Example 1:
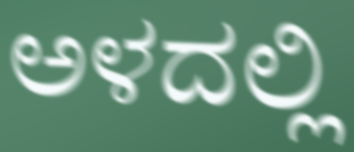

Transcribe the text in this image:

ಅಳದಲ್ಲಿ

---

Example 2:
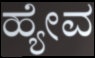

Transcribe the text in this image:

ಹ್ಯೇವ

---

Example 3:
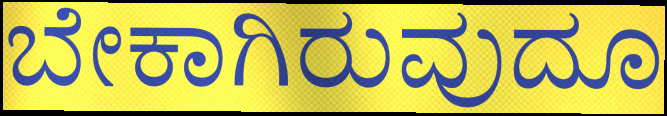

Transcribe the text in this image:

ಬೇಕಾಗಿರುವುದೂ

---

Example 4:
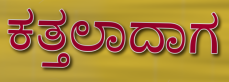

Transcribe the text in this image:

ಕತ್ತಲಾದಾಗ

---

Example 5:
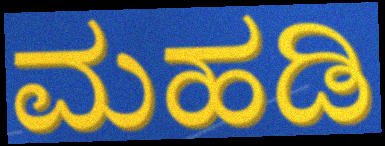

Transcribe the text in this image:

ಮಹಡಿ